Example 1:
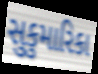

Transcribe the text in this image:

સુકુમારિકા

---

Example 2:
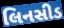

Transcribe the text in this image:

લિનસીડ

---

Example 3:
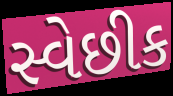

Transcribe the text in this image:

સ્વેછીક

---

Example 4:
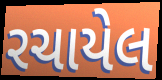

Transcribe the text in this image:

રચાયેલ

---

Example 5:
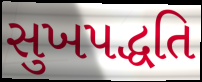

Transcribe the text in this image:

સુખપદ્ધતિ